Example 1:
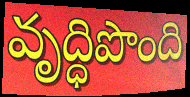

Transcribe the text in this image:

వృద్ధిపొంది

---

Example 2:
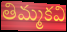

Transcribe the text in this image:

తిమ్మకవి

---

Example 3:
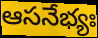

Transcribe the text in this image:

ఆసనేభ్యః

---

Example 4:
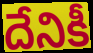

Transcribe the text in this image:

దేనికీ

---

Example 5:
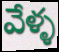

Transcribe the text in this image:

వేళ్ళ